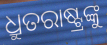
ଧ୍ରୁତରାଷ୍ଟ୍ରଙ୍କୁ